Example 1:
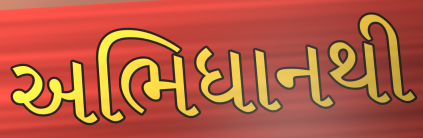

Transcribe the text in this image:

અભિધાનથી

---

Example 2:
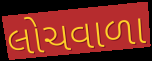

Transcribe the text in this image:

લોચવાળા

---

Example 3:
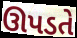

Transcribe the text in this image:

ઊપડતે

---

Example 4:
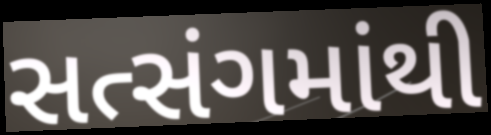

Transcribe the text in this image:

સત્સંગમાંથી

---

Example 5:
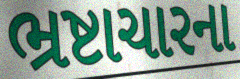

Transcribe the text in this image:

ભ્રષ્ટાચારના